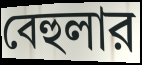
বেহুলার